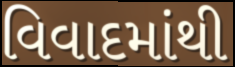
વિવાદમાંથી